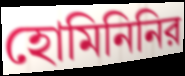
হোমিনিনির